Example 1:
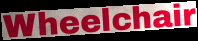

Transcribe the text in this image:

Wheelchair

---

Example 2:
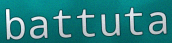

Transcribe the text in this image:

battuta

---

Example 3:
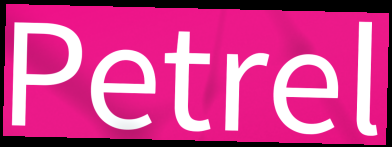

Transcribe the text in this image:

Petrel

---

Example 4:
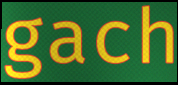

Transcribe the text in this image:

gach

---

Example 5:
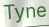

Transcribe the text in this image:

Tyne